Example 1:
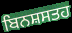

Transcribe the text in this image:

ਬਿਨਸ਼ਸਤਹ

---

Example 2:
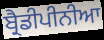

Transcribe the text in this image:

ਬ੍ਰੈਡੀਪੀਨੀਆ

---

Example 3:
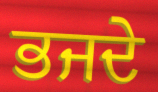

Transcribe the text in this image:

ਭਜਦੇ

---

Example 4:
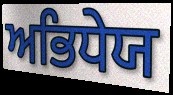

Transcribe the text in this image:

ਅਭਿਧੇਯ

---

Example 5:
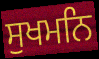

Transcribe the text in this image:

ਸੁਖਮਨਿ